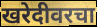
खरेदीवरचा